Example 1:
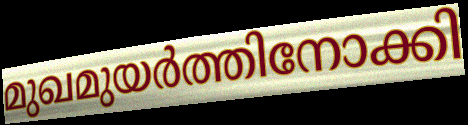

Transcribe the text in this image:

മുഖമുയർത്തിനോക്കി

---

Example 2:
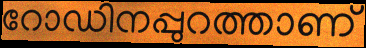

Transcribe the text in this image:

റോഡിനപ്പുറത്താണ്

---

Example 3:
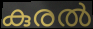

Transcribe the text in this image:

കുരൽ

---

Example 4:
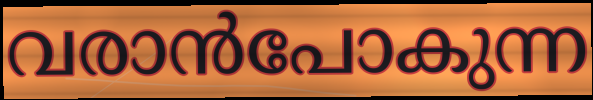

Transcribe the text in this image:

വരാൻപോകുന്ന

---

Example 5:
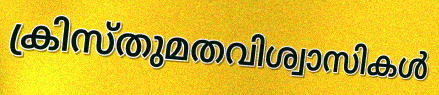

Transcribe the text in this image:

ക്രിസ്തുമതവിശ്വാസികൾ